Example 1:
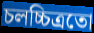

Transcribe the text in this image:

চলচ্চিত্ৰতো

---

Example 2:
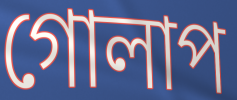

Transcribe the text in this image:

গোলাপ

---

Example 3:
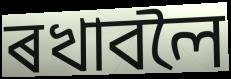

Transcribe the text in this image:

ৰখাবলৈ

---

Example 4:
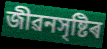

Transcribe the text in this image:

জীৱনসৃষ্টিৰ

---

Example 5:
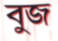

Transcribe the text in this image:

বুজ